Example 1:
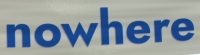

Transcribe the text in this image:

nowhere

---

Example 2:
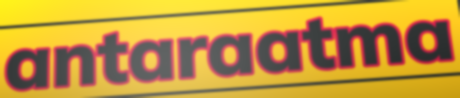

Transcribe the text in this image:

antaraatma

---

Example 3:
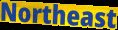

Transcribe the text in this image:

Northeast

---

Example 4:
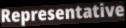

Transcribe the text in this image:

Representative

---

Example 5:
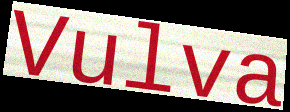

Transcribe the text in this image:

Vulva